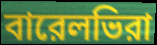
বারেলভিরা